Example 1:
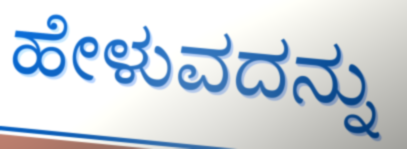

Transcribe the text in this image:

ಹೇಳುವದನ್ನು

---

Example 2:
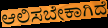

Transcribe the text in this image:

ಆಲಿಸಬೇಕಾಗಿದೆ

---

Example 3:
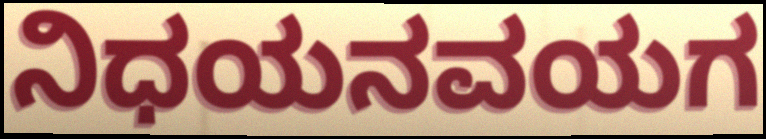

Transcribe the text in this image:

ನಿಧಯನವಯಗ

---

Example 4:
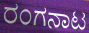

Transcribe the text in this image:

ರಂಗನಾಟ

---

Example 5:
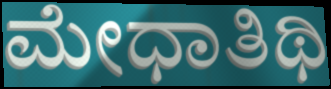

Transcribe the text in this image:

ಮೇಧಾತಿಥಿ